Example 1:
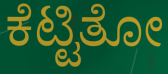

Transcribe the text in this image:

ಕೆಟ್ಟಿತೋ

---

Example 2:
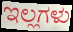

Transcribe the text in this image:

ಇಲ್ಲಗಳು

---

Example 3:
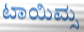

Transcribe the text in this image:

ಟಾಯಿಮ್ಸ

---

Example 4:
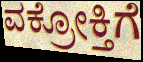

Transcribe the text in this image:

ವಕ್ರೋಕ್ತಿಗೆ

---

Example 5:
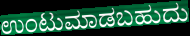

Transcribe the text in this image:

ಉಂಟುಮಾಡಬಹುದು